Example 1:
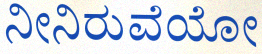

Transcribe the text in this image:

ನೀನಿರುವೆಯೋ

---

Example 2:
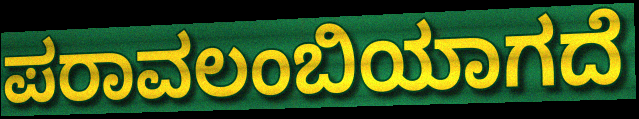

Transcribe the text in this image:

ಪರಾವಲಂಬಿಯಾಗದೆ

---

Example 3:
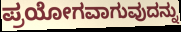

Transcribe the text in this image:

ಪ್ರಯೋಗವಾಗುವುದನ್ನು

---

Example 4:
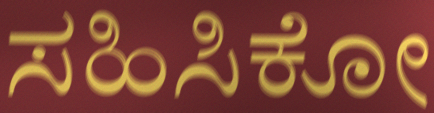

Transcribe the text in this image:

ಸಹಿಸಿಕೋ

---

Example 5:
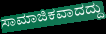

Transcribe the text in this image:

ಸಾಮಾಜಿಕವಾದದ್ದು